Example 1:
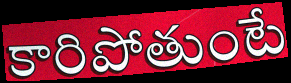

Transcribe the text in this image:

కారిపోతుంటే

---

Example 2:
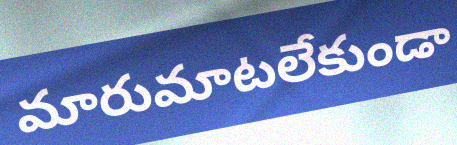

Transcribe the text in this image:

మారుమాటలేకుండా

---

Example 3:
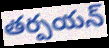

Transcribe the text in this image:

తర్పయన్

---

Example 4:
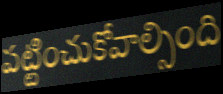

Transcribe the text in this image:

పట్టించుకోవాల్సింది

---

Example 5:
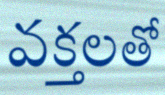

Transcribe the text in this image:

వక్తలతో